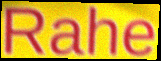
Rahe